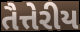
તૈત્તેરીય